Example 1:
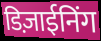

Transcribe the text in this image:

डिज़ाईनिंग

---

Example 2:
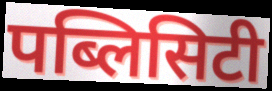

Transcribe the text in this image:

पब्लिसिटी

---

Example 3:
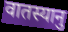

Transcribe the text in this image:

वातस्यानु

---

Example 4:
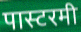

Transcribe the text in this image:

पास्टरमी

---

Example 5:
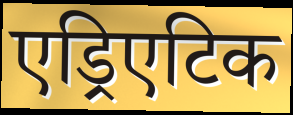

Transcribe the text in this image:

एड्रिएटिक